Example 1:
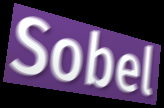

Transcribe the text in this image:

Sobel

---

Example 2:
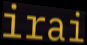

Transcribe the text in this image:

irai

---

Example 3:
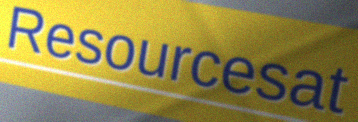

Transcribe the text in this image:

Resourcesat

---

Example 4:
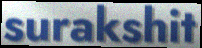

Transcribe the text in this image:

surakshit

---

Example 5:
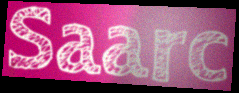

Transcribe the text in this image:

Saarc